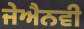
ਜੇਐਨਵੀ